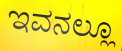
ಇವನಲ್ಲೂ